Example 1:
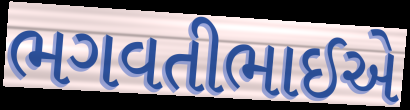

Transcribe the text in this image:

ભગવતીભાઈએ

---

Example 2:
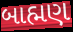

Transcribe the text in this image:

બાહ્મણ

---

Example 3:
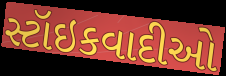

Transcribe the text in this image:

સ્ટૉઇકવાદીઓ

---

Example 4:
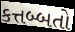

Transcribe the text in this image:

કત્તબ્બતો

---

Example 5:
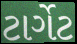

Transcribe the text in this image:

ટાર્ગેટ